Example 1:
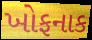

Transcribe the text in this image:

ખોફનાક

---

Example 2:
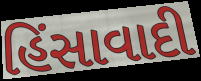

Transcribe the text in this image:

હિંસાવાદી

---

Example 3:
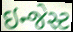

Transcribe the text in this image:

ઇન્જેસ્ટ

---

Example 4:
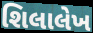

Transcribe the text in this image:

શિલાલેખ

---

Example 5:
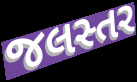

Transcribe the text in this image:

જલસ્તર